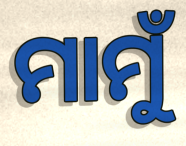
ମାମୁଁ